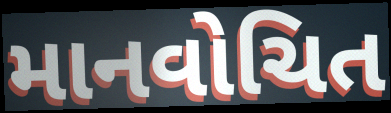
માનવોચિત